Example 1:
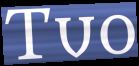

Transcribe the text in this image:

Tuo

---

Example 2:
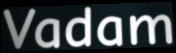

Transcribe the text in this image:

Vadam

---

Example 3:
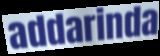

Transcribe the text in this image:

addarinda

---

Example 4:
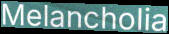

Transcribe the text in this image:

Melancholia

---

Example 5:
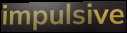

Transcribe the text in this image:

impulsive